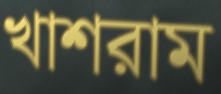
খাশরাম